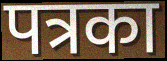
पत्रका